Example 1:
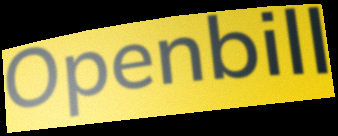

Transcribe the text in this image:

Openbill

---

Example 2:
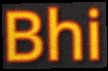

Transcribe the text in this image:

Bhi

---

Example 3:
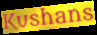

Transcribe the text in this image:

Kushans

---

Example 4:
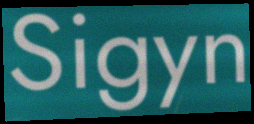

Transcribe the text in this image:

Sigyn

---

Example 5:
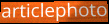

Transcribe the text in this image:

articlephoto